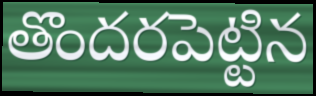
తొందరపెట్టిన